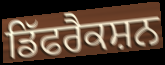
ਡਿੱਫਰੈਕਸ਼ਨ